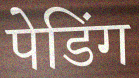
पेडिंग